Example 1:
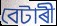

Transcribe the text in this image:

বেটাৰী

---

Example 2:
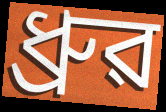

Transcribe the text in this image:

ধ্ৰুৱ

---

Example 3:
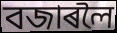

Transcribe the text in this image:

বজাৰলৈ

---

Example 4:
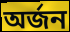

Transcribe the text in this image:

অৰ্জন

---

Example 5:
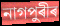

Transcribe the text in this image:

নাগপুৰীৰ